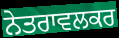
ਨੇਤਰਾਵਲਕਰ